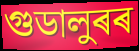
গুডালুৰৰ